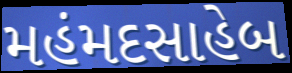
મહંમદસાહેબ